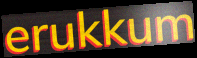
erukkum